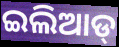
ଇଲିଆଡ୍